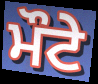
ਮੌਟੇ